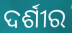
ଦର୍ଶୀର